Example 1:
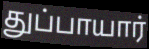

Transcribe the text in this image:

துப்பாயார்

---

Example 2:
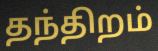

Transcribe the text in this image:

தந்திறம்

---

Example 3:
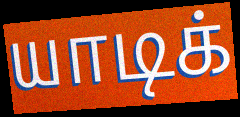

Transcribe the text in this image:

யாடிக்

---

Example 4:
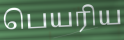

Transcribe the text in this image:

பெயரிய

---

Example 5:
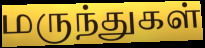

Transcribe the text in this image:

மருந்துகள்